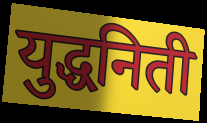
युद्धनिती